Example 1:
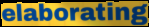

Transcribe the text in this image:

elaborating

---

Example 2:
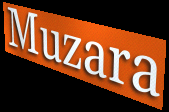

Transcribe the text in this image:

Muzara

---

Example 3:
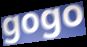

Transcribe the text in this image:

gogo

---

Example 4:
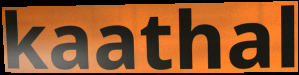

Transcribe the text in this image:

kaathal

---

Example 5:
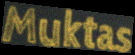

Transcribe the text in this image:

Muktas